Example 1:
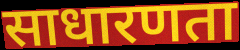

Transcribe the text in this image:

साधारणता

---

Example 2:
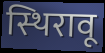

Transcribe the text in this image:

स्थिरावू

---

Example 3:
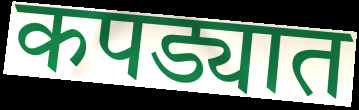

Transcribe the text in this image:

कपड्यात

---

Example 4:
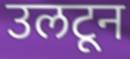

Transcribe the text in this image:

उलटून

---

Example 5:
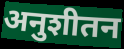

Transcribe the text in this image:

अनुशीतन